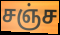
சஞ்ச